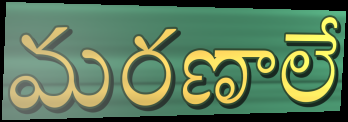
మరణాలే